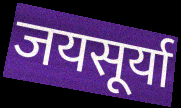
जयसूर्या